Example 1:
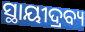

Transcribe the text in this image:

ସ୍ଥାୟୀଦ୍ରବ୍ୟ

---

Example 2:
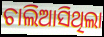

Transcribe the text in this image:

ଚାଲିଆସିଥିଲା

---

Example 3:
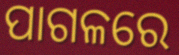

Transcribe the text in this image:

ପାଗଳରେ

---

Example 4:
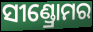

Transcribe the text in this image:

ସୀଣ୍ଡ୍ରୋମର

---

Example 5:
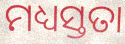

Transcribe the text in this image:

ମଧ୍ୟସ୍ତତା